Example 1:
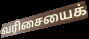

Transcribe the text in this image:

வரிசையைக்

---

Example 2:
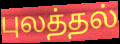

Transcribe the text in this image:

புலத்தல்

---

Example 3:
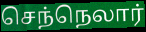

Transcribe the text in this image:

செந்நெலார்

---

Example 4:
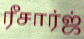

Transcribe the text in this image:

ரீசார்ஜ்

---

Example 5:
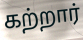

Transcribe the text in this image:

கற்றார்